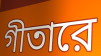
গীতারে